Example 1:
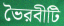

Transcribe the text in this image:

ভৈরবীটি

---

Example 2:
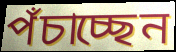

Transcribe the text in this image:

পঁচাচ্ছেন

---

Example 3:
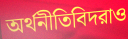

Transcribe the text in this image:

অর্থনীতিবিদরাও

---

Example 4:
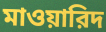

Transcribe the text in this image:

মাওয়ারিদ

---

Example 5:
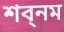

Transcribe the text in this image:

শব্নম